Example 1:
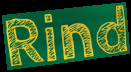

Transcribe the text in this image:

Rind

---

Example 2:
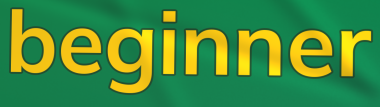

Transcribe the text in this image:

beginner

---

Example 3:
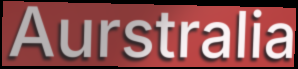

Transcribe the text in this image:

Aurstralia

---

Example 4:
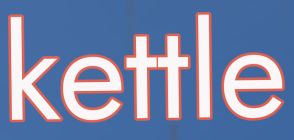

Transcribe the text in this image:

kettle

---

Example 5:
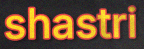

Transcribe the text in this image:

shastri